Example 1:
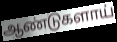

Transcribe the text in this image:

ஆண்டுகளாய்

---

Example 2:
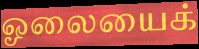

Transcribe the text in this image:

ஓலையைக்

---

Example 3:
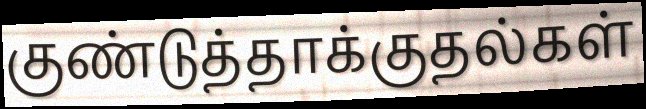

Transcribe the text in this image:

குண்டுத்தாக்குதல்கள்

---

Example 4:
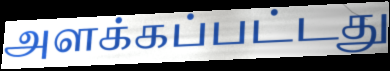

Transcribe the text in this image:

அளக்கப்பட்டது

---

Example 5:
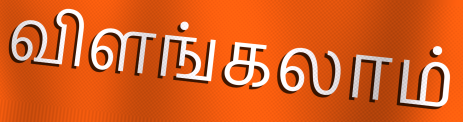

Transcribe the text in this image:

விளங்கலாம்